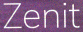
Zenit